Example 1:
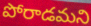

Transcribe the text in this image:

పోరాడమని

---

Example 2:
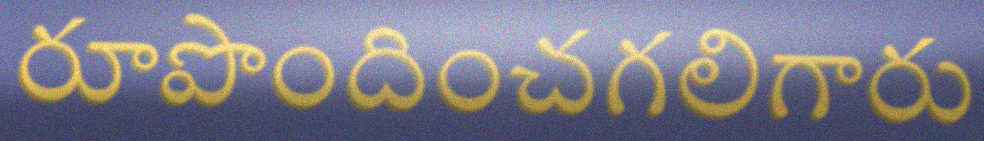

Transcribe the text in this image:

రూపొందించగలిగారు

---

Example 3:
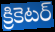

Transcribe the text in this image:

క్రికెటర్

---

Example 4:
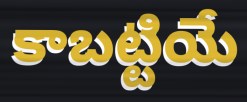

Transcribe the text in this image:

కాబట్టియే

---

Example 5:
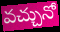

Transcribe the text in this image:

వచ్చునో